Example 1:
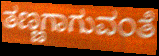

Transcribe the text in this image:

ತಣ್ಣಗಾಗುವಂತೆ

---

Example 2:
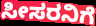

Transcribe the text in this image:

ಸೀಸರನಿಗೆ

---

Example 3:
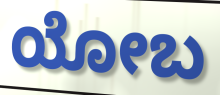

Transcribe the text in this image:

ಯೋಬ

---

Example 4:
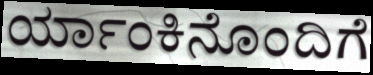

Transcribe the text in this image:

ರ್ಯಾಂಕಿನೊಂದಿಗೆ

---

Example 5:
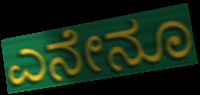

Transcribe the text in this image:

ಎನೇನೂ